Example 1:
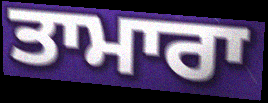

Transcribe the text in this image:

ਤਾਮਾਰਾ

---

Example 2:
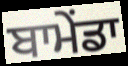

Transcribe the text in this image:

ਬਾਮੇਂਡਾ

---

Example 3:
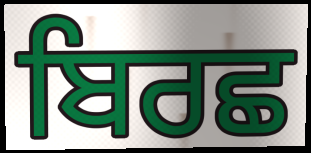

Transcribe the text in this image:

ਬਿਰਛ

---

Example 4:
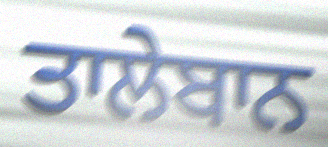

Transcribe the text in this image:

ਤਾਲੇਬਾਨ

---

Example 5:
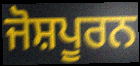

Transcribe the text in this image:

ਜੋਸ਼ਪੂਰਨ